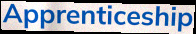
Apprenticeship